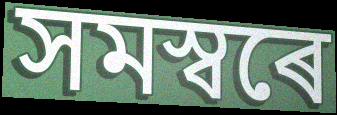
সমস্বৰে